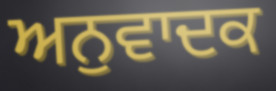
ਅਨੁਵਾਦਕ